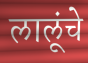
लालूंचे